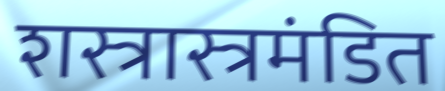
शस्त्रास्त्रमंडित